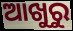
ଆଖୁରୁ